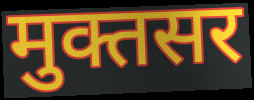
मुक्तसर